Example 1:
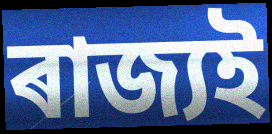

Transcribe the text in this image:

ৰাজ্যই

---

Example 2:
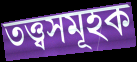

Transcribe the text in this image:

তত্ত্বসমূহক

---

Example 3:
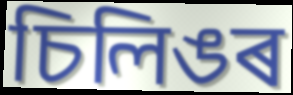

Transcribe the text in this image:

চিলিঙৰ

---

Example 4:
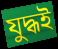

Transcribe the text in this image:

যুদ্ধই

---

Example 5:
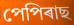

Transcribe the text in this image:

পেপিৰাছ